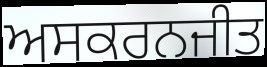
ਅਸਕਰਨਜੀਤ